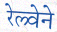
रेल्वेने